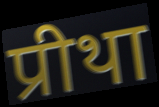
प्रीथा